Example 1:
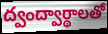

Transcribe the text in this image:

ద్వంద్వార్థాలతో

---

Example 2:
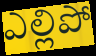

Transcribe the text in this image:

ఎల్లిపో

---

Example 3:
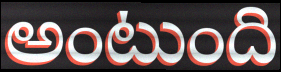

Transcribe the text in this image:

అంటుంది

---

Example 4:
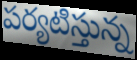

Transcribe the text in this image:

పర్యటిస్తున్న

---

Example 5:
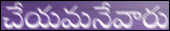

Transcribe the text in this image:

చేయమనేవారు